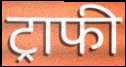
ट्राफी